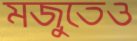
মজুতেও